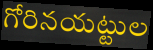
గోరినయట్టుల